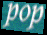
pop